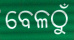
ବେଳଠୁଁ